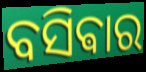
ବସିଵାର